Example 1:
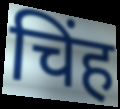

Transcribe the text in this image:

चिंह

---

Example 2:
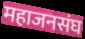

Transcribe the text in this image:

महाजनसंघ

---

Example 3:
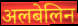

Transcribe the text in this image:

अलबेलिन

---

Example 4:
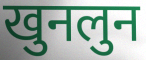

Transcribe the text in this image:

खुनलुन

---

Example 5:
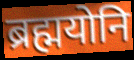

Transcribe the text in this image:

ब्रह्मयोनि